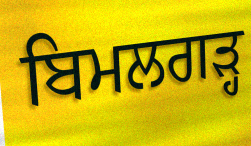
ਬਿਮਲਗੜ੍ਹ